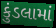
કુંડલામાં